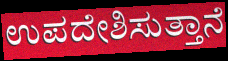
ಉಪದೇಶಿಸುತ್ತಾನೆ